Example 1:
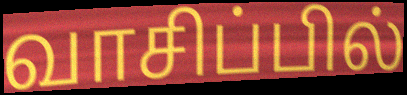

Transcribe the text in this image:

வாசிப்பில்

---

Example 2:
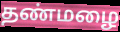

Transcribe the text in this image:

தண்மழை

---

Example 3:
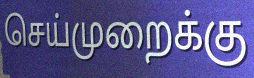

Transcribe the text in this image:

செய்முறைக்கு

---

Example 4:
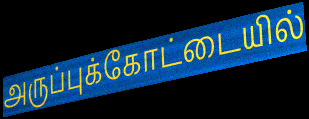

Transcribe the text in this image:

அருப்புக்கோட்டையில்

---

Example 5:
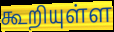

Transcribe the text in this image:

கூறியுள்ள